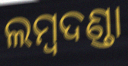
ଲମ୍ୱଦଣ୍ଡା